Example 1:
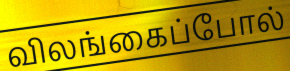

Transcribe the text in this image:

விலங்கைப்போல்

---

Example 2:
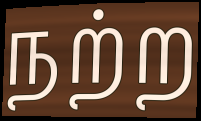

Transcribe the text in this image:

நற்ற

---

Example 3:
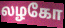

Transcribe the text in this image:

லழகோ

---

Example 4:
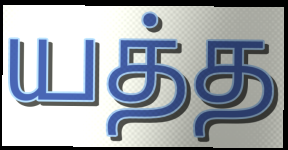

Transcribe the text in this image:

யத்த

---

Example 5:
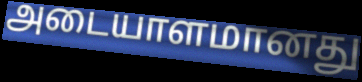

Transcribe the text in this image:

அடையாளமானது